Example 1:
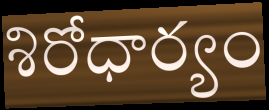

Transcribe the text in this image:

శిరోధార్యం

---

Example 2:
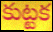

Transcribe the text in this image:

కుట్టక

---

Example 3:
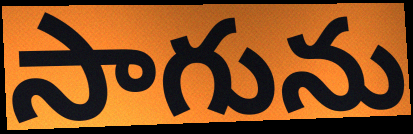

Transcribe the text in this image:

సాగును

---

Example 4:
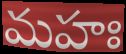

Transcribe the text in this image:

మహః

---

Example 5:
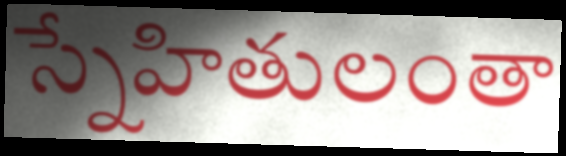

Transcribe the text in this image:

స్నేహితులంతా